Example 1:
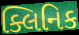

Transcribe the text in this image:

ક્લિનિક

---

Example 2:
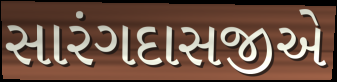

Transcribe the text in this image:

સારંગદાસજીએ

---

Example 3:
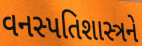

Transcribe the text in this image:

વનસ્પતિશાસ્ત્રને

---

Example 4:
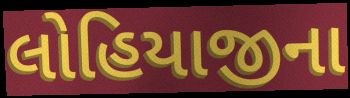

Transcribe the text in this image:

લોહિયાજીના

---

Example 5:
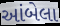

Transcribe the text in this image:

આંબેલા